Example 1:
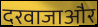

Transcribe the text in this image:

दरवाजाऔर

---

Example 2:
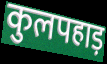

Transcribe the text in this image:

कुलपहाड़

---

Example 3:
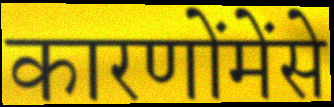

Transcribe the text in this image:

कारणोंमेंसे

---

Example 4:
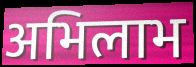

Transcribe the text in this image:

अभिलाभ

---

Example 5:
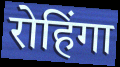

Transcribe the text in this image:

रोहिंगा